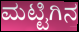
ಮಟ್ಟಿಗಿನ